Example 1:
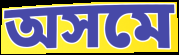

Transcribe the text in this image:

অসমে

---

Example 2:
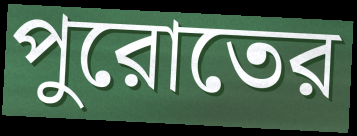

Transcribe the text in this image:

পুরোতের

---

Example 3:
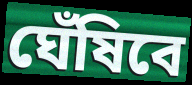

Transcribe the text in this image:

ঘেঁষিবে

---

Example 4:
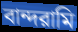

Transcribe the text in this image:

বান্দরামি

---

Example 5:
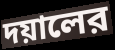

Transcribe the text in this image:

দয়ালের